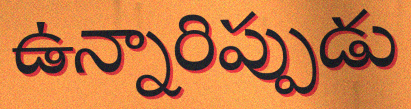
ఉన్నారిప్పుడు